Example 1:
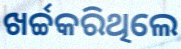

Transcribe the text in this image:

ଖର୍ଚ୍ଚକରିଥିଲେ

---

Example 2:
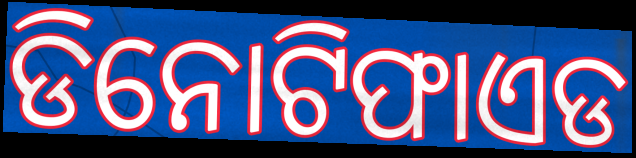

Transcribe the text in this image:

ଡିନୋଟିଫାଏଡ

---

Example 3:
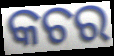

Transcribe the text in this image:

କଚର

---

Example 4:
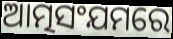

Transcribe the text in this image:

ଆତ୍ମସଂଯମରେ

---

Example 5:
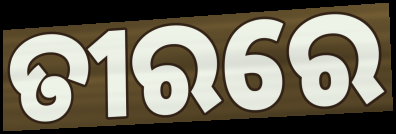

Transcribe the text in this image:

ତୀରରେ